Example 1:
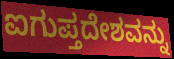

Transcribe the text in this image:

ಐಗುಪ್ತದೇಶವನ್ನು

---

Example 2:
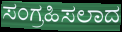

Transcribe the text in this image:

ಸಂಗ್ರಹಿಸಲಾದ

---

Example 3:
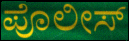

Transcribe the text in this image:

ಪೊಲೀಸ್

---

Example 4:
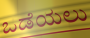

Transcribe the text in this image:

ಒಡೆಯಲು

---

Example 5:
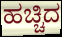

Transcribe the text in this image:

ಹಚ್ಚಿದ